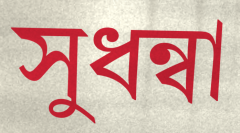
সুধন্বা